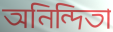
অনিন্দিতা